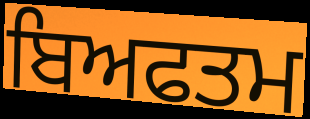
ਬਿਅਫਤਮ